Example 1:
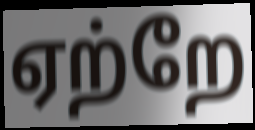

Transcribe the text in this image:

ஏற்றே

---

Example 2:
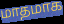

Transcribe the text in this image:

மாதமாக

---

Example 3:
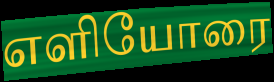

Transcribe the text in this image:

எளியோரை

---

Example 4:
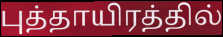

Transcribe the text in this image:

புத்தாயிரத்தில்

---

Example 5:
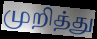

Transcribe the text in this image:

முறித்து